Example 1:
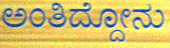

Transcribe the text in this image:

ಅಂತಿದ್ದೋನು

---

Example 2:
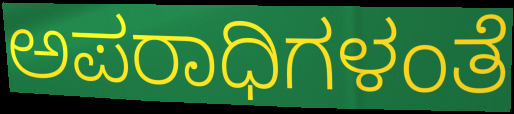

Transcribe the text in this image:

ಅಪರಾಧಿಗಳಂತೆ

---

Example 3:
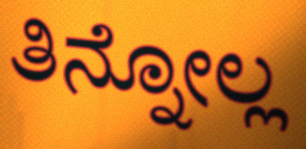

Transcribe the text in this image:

ತಿನ್ನೋಲ್ಲ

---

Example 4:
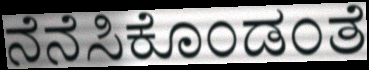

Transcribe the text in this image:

ನೆನೆಸಿಕೊಂಡಂತೆ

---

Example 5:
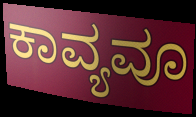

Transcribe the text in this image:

ಕಾವ್ಯವೂ